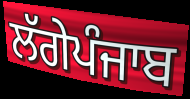
ਲੱਗੇਪੰਜਾਬ